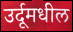
उर्दूमधील